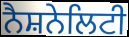
ਨੈਸ਼ਨੇਲਿਟੀ